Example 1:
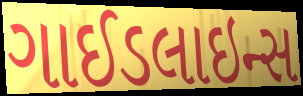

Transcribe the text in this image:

ગાઈડલાઇન્સ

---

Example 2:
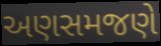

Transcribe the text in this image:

અણસમજણે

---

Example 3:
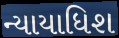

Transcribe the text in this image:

ન્યાયાધિશ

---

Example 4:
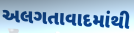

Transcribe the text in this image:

અલગતાવાદમાંથી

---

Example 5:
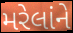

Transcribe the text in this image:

મરેલાંને